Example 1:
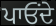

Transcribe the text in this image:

ਪਾਓਂਦੇ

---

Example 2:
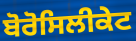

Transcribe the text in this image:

ਬੋਰੋਸਿਲੀਕੇਟ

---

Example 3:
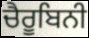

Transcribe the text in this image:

ਚੈਰੂਬਿਨੀ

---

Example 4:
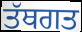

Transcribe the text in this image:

ਤੱਥਗਤ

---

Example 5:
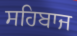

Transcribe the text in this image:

ਸਹਿਬਾਜ